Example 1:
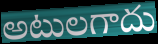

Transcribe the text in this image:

అటులగాదు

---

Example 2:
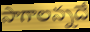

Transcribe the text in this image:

సాగాలన్నదే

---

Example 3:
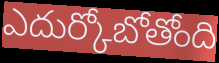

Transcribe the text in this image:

ఎదుర్కోబోతోంది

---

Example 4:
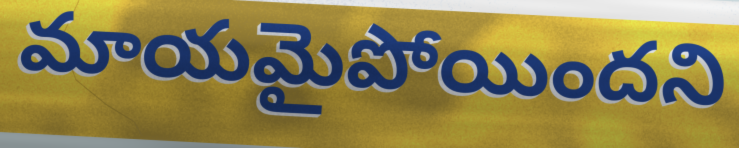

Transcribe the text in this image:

మాయమైపోయిందని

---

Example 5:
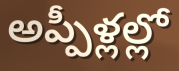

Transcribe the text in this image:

అప్పీళ్లల్లో